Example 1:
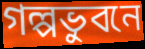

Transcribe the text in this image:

গল্পভুবনে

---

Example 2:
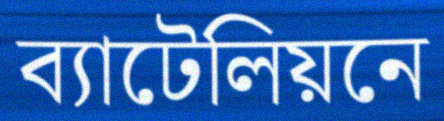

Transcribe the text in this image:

ব্যাটেলিয়নে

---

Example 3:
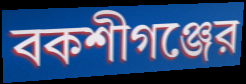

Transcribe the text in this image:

বকশীগঞ্জের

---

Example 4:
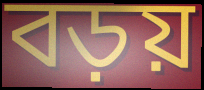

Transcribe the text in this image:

বড়য়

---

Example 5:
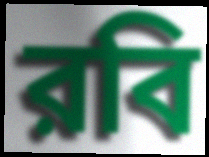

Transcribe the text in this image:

রবি